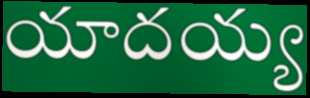
యాదయ్య